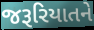
જરૂરિયાતને